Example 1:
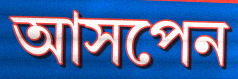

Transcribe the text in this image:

আসপেন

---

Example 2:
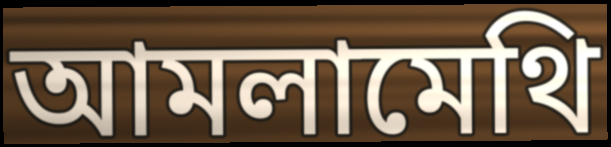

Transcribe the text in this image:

আমলামেথি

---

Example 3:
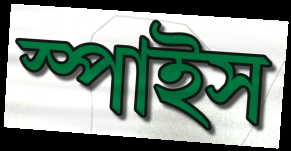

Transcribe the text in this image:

স্পাইস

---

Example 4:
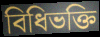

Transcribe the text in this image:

বিধিভক্তি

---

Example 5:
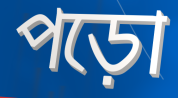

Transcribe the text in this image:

পড়ো